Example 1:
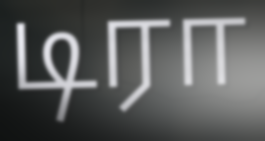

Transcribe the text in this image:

டிரா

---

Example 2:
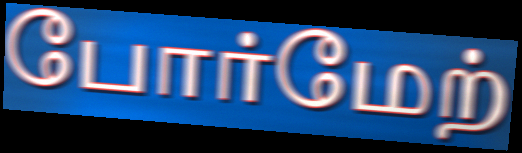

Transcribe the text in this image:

போர்மேற்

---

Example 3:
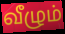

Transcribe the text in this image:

வீழும்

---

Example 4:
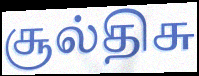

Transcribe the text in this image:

சூல்திசு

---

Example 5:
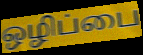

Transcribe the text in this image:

ஒழிப்பை